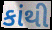
કાંથી